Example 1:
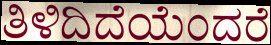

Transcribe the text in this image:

ತಿಳಿದಿದೆಯೆಂದರೆ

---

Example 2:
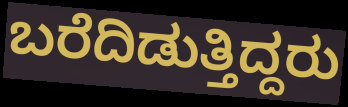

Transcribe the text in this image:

ಬರೆದಿಡುತ್ತಿದ್ದರು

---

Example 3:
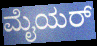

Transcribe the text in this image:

ಮೈಯರ್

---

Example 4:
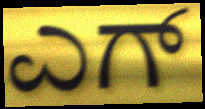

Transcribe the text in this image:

ಎಗ್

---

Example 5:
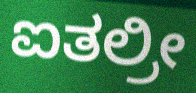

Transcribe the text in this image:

ಐತಲ್ರೀ